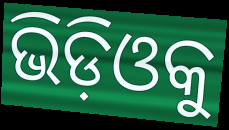
ଭିଡ଼ିଓକୁ